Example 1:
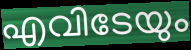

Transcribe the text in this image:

എവിടേയും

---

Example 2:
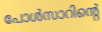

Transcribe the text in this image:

പോൾസാറിന്റെ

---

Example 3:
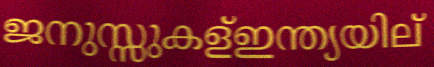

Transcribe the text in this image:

ജനുസ്സുകള്ഇന്ത്യയില്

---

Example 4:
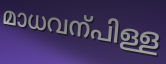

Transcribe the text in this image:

മാധവന്പിള്ള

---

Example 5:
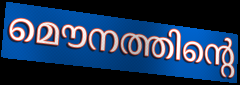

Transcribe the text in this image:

മൌനത്തിന്റെ